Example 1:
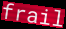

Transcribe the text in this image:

frail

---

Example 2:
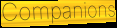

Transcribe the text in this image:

Companions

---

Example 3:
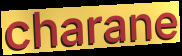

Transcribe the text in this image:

charane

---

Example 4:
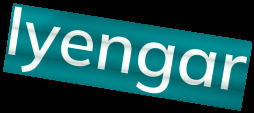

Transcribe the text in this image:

Iyengar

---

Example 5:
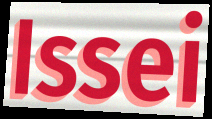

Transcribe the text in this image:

Issei